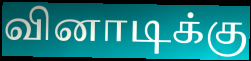
வினாடிக்கு